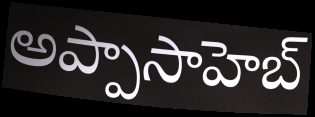
అప్పాసాహెబ్